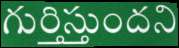
గుర్తిస్తుందని